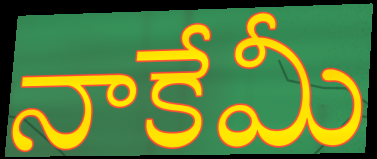
నాకేమీ